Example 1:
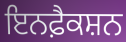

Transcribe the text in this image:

ਇਨਫ਼ੈਕਸ਼ਨ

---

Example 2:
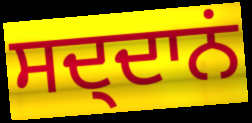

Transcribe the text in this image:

ਸਦ੍ਦਾਨਂ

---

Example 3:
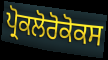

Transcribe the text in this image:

ਪ੍ਰੋਕਲੋਰੋਕੋਕਸ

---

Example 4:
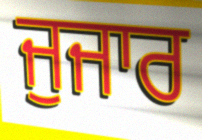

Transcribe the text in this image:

ਜੁਜਾਰ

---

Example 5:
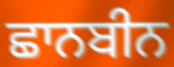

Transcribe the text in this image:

ਛਾਨਬੀਨ